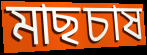
মাছচাষ